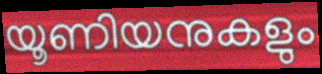
യൂണിയനുകളും